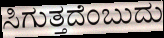
ಸಿಗುತ್ತದೆಂಬುದು